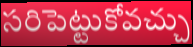
సరిపెట్టుకోవచ్చు